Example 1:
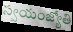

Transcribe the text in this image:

స్వయంజ్యోతి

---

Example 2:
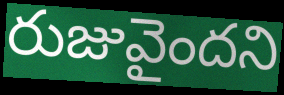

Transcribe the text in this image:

రుజువైందని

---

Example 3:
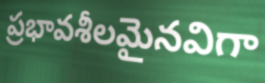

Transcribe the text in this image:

ప్రభావశీలమైనవిగా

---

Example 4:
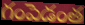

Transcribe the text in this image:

గంపెడంత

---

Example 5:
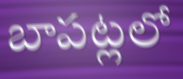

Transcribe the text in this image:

బాపట్లలో